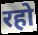
रहो